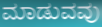
ಮಾಡುವವು